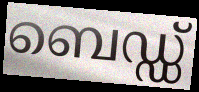
ബെഡ്ഡ്